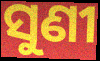
ସୁଣୀ